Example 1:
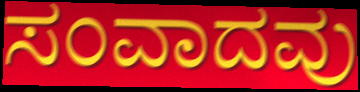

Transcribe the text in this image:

ಸಂವಾದವು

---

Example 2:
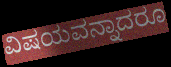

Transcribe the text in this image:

ವಿಷಯವನ್ನಾದರೂ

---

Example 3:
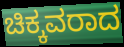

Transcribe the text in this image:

ಚಿಕ್ಕವರಾದ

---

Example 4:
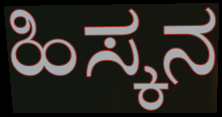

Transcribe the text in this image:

ಹಿಸ್ಕನ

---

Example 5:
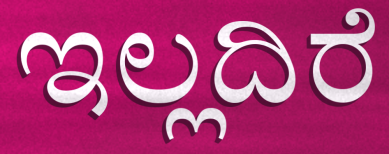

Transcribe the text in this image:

ಇಲ್ಲದಿರೆ